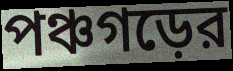
পঞ্চগড়ের